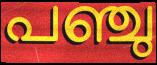
പഞ്ചു